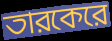
তারকেরে